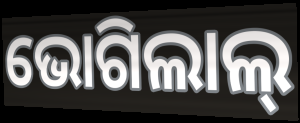
ଭୋଗିଲାଲ୍